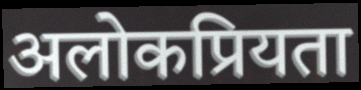
अलोकप्रियता